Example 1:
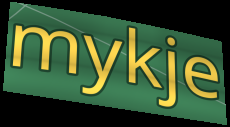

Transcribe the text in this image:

mykje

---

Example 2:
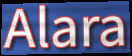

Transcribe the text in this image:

Alara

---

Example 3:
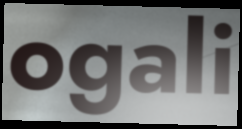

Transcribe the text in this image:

ogali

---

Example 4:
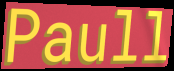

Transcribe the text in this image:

Paull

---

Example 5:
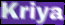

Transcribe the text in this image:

Kriya